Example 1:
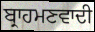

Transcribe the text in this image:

ਬ੍ਰਾਹਮਣਵਾਦੀ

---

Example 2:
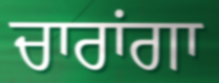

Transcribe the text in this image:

ਚਾਰਾਂਗਾ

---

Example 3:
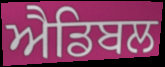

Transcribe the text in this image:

ਐਡਿਬਲ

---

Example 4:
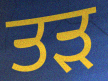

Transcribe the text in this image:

ਤੜ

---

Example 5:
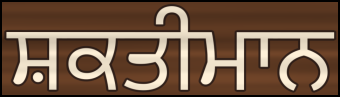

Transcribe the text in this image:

ਸ਼ਕਤੀਮਾਨ